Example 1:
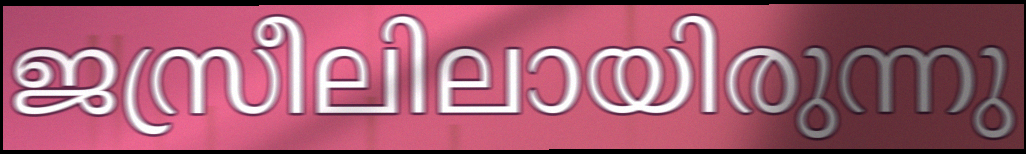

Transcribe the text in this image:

ജസ്രീലിലായിരുന്നു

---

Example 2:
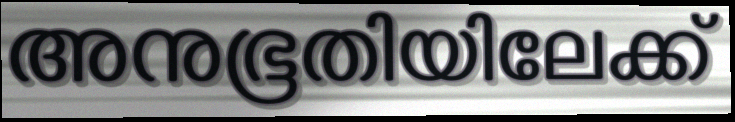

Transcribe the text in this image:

അനുഭൂതിയിലേക്ക്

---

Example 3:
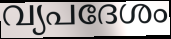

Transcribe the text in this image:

വ്യപദേശം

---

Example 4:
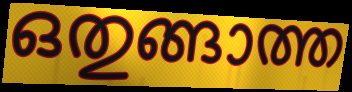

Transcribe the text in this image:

ഒതുങ്ങാത്ത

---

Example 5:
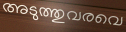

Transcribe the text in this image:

അടുത്തുവരവെ